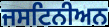
ਜਸਟਿਨੀਅਨ